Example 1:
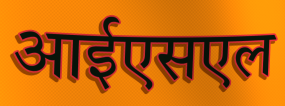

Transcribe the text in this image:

आईएसएल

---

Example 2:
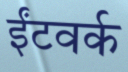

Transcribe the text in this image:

ईंटवर्क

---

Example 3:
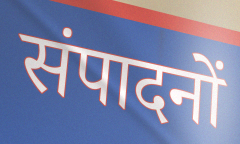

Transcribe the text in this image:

संपादनों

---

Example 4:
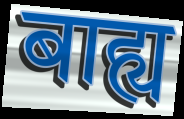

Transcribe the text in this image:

बाह्य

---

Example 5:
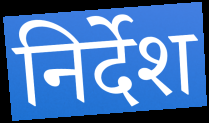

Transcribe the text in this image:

निर्देश